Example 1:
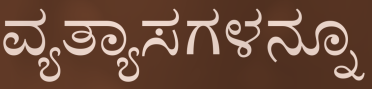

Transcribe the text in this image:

ವ್ಯತ್ಯಾಸಗಳನ್ನೂ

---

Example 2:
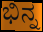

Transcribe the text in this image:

ಭಿನ್ನ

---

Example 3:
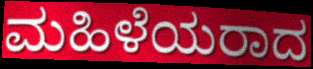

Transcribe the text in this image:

ಮಹಿಳೆಯರಾದ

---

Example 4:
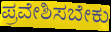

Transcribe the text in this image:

ಪ್ರವೇಶಿಸಬೇಕು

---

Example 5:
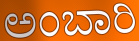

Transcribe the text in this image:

ಅಂಬಾರಿ